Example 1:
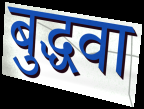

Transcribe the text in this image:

बुद्धवा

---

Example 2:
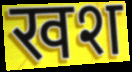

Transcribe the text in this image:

खश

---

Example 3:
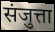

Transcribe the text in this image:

संजुत्ता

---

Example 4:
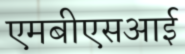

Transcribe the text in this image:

एमबीएसआई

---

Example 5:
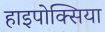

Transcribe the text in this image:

हाइपोक्सिया